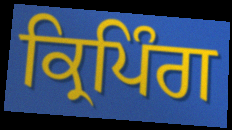
ਕ੍ਰਿਪਿੰਗ